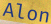
Alon